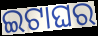
ଇଟାଘର